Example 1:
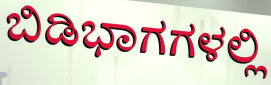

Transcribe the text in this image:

ಬಿಡಿಭಾಗಗಳಲ್ಲಿ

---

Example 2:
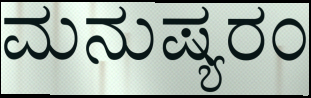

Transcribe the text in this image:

ಮನುಷ್ಯರಂ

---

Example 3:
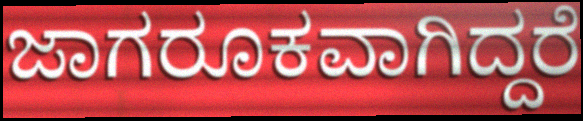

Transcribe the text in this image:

ಜಾಗರೂಕವಾಗಿದ್ದರೆ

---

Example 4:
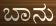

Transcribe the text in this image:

ಬಾನು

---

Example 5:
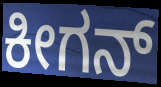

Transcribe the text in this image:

ಕೀಗನ್